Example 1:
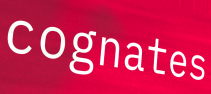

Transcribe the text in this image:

cognates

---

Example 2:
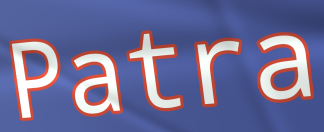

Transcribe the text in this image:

Patra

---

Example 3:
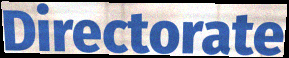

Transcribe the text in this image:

Directorate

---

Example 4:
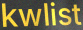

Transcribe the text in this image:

kwlist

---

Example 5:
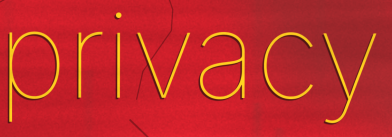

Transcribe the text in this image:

privacy